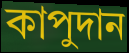
কাপুদান